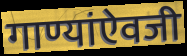
गाण्यांऐवजी